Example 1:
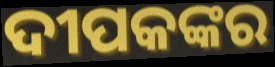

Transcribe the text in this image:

ଦୀପକଙ୍କର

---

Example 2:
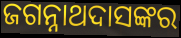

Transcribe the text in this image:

ଜଗନ୍ନାଥଦାସଙ୍କର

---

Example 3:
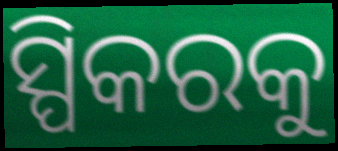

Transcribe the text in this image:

ସ୍ପିକରକୁ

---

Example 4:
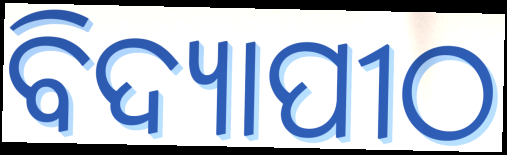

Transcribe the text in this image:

ବିଦ୍ୟାପୀଠ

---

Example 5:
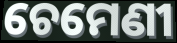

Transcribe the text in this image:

ଚେମେଣୀ